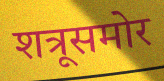
शत्रूसमोर